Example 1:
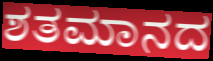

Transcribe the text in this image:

ಶತಮಾನದ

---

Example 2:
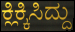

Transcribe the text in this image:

ಕ್ಲಿಕ್ಕಿಸಿದ್ದು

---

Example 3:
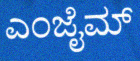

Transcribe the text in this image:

ಎಂಜೈಮ್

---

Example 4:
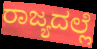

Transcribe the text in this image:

ರಾಜ್ಯದಲ್ಲೆ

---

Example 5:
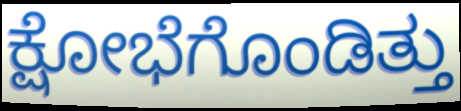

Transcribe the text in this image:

ಕ್ಷೋಭೆಗೊಂಡಿತ್ತು